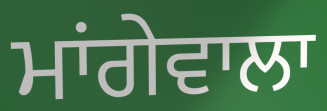
ਮਾਂਗੇਵਾਲਾ